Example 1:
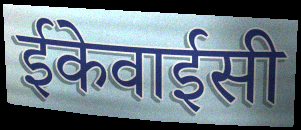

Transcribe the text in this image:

ईकेवाईसी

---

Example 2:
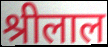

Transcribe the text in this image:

श्रीलाल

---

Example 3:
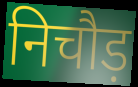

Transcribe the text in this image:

निचौड़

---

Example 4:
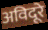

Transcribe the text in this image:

अविदूरे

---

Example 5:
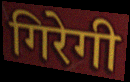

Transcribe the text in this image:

गिरेगी